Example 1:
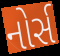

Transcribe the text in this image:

નોર્સ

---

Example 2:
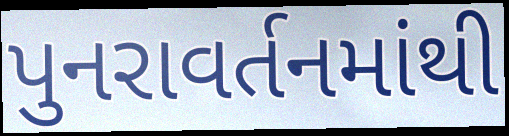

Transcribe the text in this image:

પુનરાવર્તનમાંથી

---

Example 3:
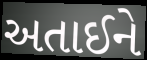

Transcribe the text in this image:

અતાઈને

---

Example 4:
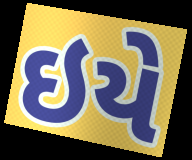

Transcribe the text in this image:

ઇયે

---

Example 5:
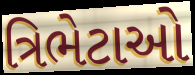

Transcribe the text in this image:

ત્રિભેટાઓ